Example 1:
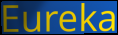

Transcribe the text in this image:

Eureka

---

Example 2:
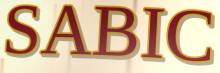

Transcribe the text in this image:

SABIC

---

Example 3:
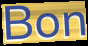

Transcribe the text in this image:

Bon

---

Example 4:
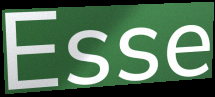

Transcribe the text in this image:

Esse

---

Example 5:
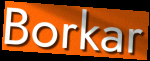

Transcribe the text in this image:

Borkar